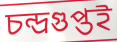
চন্দ্ৰগুপ্তই